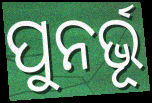
ପୁନର୍ଭୂ